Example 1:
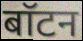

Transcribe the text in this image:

बॉटन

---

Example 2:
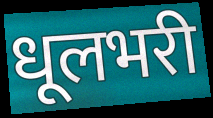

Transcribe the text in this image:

धूलभरी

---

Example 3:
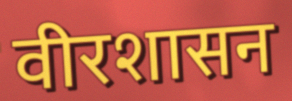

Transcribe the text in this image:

वीरशासन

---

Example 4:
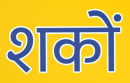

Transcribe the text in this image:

शकों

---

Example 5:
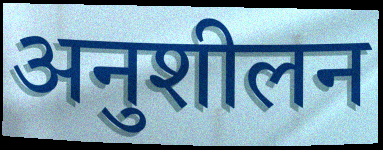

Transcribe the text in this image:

अनुशीलन